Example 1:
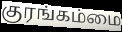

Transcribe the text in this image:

குரங்கம்மை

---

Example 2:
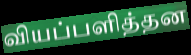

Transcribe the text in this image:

வியப்பளித்தன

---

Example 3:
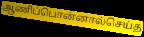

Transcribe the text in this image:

ஆணிப்பொன்னால்செய்த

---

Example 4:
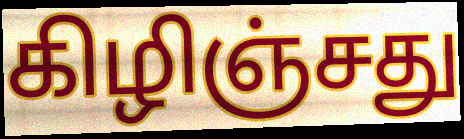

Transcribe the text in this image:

கிழிஞ்சது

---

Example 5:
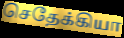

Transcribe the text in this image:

செதேக்கியா